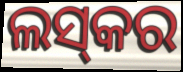
ଲସ୍‌କର